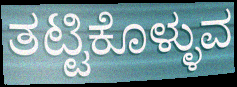
ತಟ್ಟಿಕೊಳ್ಳುವ